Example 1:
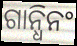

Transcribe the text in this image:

ଗାନ୍ଧିନଂ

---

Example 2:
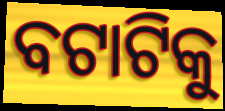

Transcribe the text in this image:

ବଟାଟିକୁ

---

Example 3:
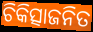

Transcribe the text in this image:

ଚିକିତ୍ସାଜନିତ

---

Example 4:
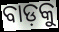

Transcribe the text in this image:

ବାଡ଼କୁ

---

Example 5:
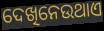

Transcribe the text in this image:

ଦେଖିନେଉଥାଏ